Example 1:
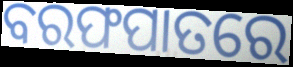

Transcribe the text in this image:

ବରଫପାତରେ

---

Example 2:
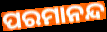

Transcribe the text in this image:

ପରମାନନ୍ଦ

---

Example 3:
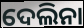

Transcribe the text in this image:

ଦେଲିନା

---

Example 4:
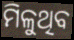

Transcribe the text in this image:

ମିଳୁଥିବ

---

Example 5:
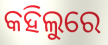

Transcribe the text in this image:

କହିଲୁରେ